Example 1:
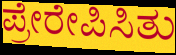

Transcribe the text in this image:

ಪ್ರೇರೇಪಿಸಿತು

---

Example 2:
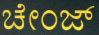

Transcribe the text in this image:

ಚೇಂಜ್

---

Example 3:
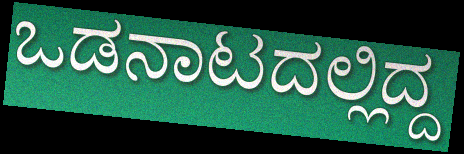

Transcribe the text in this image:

ಒಡನಾಟದಲ್ಲಿದ್ದ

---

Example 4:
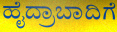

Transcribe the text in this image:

ಹೈದ್ರಾಬಾದಿಗೆ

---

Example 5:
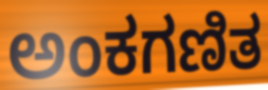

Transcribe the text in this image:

ಅಂಕಗಣಿತ